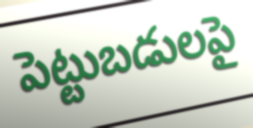
పెట్టుబడులపై